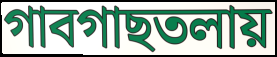
গাবগাছতলায়